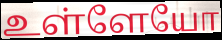
உள்ளேயோ